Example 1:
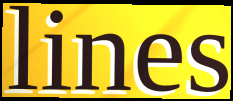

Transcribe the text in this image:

lines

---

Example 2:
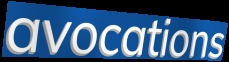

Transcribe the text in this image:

avocations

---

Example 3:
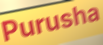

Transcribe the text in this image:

Purusha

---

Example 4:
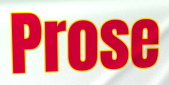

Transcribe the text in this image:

Prose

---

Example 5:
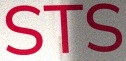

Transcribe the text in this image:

STS